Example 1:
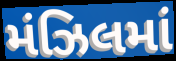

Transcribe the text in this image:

મંઝિલમાં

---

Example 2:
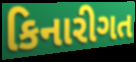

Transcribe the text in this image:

કિનારીગત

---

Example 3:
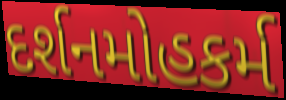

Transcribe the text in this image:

દર્શનમોહકર્મ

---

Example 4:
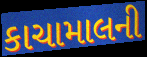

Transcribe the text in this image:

કાચામાલની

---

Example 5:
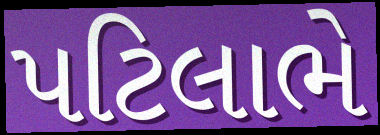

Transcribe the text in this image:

પટિલાભે